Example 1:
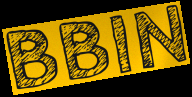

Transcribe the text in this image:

BBIN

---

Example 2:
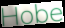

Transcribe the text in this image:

Hobe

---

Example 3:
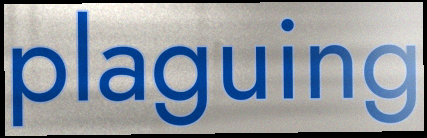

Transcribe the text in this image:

plaguing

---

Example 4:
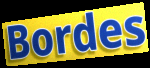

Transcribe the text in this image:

Bordes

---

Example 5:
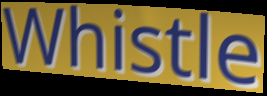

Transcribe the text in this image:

Whistle